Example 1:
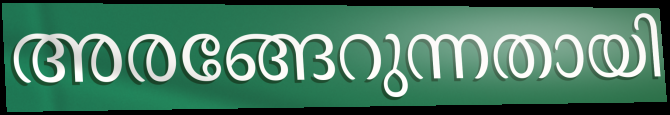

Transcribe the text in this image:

അരങ്ങേറുന്നതായി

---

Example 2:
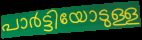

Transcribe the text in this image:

പാർട്ടിയോടുള്ള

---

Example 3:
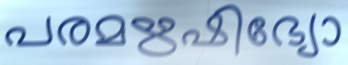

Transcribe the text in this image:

പരമഋഷിഭ്യോ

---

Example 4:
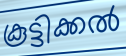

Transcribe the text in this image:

കൂട്ടിക്കൽ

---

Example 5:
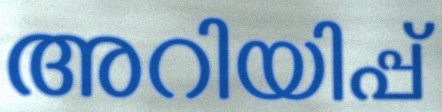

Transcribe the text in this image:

അറിയിപ്പ്